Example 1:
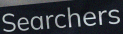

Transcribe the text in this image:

Searchers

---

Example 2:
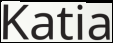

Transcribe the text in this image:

Katia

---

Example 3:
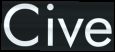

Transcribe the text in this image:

Cive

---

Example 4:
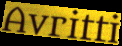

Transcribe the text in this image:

Avritti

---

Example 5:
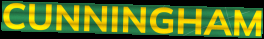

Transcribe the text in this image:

CUNNINGHAM